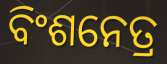
ବିଂଶନେତ୍ର